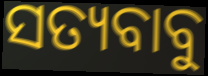
ସତ୍ୟବାବୁ